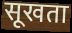
सूखता